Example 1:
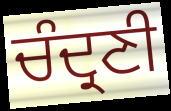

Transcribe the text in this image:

ਚੰਦ੍ਰਣੀ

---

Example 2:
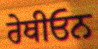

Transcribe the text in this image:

ਰੇਥੀਓਨ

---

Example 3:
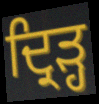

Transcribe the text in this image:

ਦ੍ਰਿੜ੍ਹ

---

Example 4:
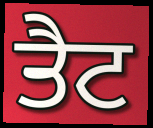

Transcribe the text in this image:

ਤੈਟ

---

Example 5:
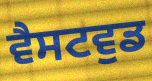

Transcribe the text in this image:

ਵੈਸਟਵੁਡ